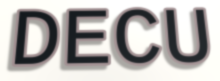
DECU